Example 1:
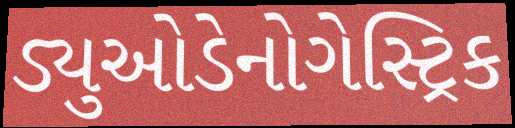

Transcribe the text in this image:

ડ્યુઓડેનોગેસ્ટ્રિક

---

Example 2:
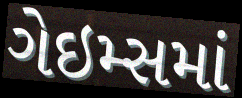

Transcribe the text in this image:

ગેઇમ્સમાં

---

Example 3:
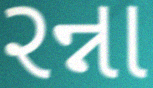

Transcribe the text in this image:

રન્ના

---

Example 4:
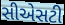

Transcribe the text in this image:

સીએસટી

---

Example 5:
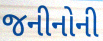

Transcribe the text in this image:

જનીનોની